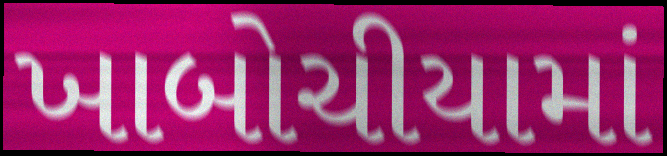
ખાબોચીયામાં